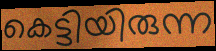
കെട്ടിയിരുന്ന